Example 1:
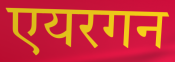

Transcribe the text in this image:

एयरगन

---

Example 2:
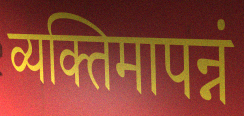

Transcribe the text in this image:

व्यक्तिमापन्नं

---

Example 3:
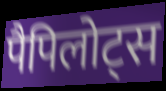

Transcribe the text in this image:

पैपिलोट्स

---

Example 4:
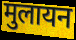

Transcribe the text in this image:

मुलायन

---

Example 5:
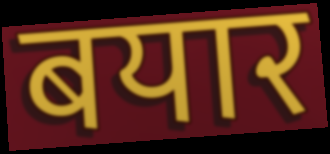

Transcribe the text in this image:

बयार